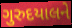
ગુરુદયાલને